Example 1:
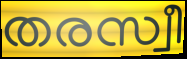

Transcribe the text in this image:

തരസ്വീ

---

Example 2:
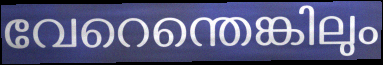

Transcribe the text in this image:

വേറെന്തെങ്കിലും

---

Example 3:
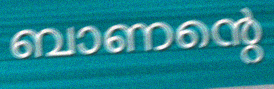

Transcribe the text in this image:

ബാണന്റെ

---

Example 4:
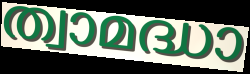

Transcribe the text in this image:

ത്വാമദ്ധാ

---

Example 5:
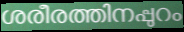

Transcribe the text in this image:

ശരീരത്തിനപ്പുറം